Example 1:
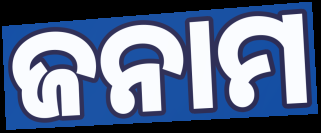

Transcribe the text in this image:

ଜନାମ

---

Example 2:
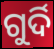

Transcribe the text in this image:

ଗୁର୍ଦି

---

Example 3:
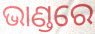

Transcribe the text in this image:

ଭାଣ୍ଡରେ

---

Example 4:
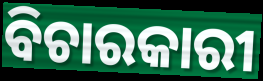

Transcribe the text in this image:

ବିଚାରକାରୀ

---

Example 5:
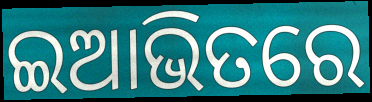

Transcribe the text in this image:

ଇଆଭିତରେ